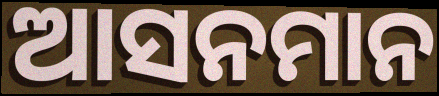
ଆସନମାନ